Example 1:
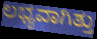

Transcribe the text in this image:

ಲಭ್ಯವಾಗಿತ್ತು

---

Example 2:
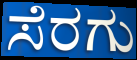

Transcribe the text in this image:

ಸೆರಗು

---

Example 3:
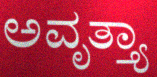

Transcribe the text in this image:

ಅವೃತ್ತ್ಯಾ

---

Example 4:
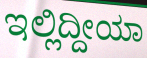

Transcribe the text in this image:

ಇಲ್ಲಿದ್ದೀಯಾ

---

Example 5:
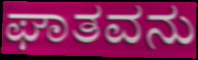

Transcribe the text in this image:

ಘಾತವನು